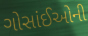
ગોસાંઈઓની